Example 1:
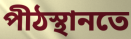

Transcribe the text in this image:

পীঠস্থানতে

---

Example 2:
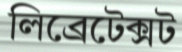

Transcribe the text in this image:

লিব্ৰেটেক্সট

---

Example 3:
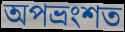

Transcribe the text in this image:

অপভ্ৰংশত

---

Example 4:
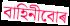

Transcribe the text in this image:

বাহিনীবোৰ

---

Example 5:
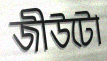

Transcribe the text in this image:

জীউটো